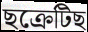
ছক্ৰেটিছ